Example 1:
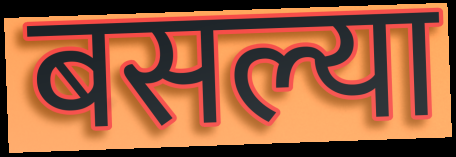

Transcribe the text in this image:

बसल्या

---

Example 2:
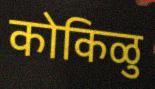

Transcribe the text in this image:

कोकिळु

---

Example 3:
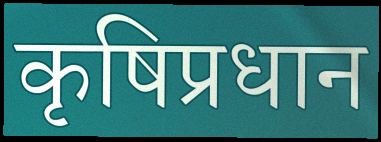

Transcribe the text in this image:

कृषिप्रधान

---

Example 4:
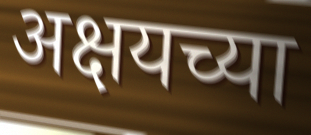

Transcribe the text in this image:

अक्षयच्या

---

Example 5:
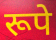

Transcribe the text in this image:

रूपे